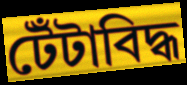
টেঁটাবিদ্ধ